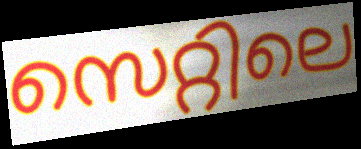
സെറ്റിലെ